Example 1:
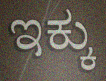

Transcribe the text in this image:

ಇಕ್ಕು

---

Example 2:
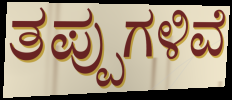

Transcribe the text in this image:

ತಪ್ಪುಗಳಿವೆ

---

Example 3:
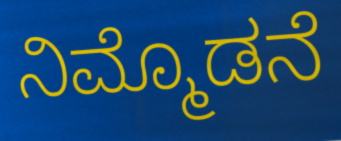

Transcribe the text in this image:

ನಿಮ್ಮೊಡನೆ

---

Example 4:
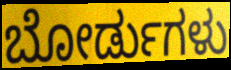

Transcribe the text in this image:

ಬೋರ್ಡುಗಳು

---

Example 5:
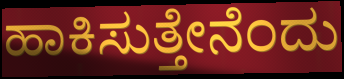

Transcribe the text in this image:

ಹಾಕಿಸುತ್ತೇನೆಂದು